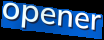
opener